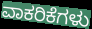
ವಾಕರಿಕೆಗಳು